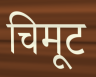
चिमूट